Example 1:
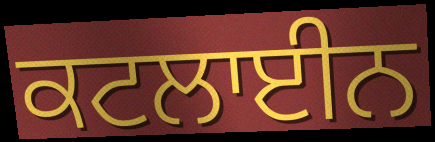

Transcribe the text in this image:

ਕਟਲਾਈਨ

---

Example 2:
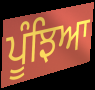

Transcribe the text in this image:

ਪੂੰਝਿਆ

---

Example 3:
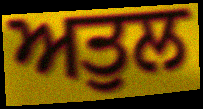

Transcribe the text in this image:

ਅਤੁਲ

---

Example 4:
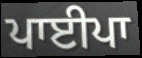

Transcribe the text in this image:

ਪਾਈਪਾ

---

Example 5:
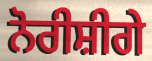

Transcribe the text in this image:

ਨੋਰੀਸ਼ੀਗੇ